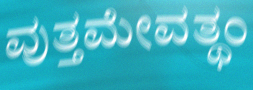
ವುತ್ತಮೇವತ್ಥಂ